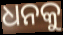
ଧନକୁ